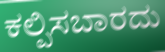
ಕಲ್ಪಿಸಬಾರದು